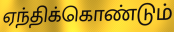
ஏந்திக்கொண்டும்